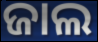
ଜାଲ